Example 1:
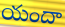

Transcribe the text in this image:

యందా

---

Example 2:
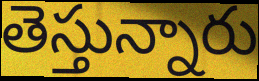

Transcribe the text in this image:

తెస్తున్నారు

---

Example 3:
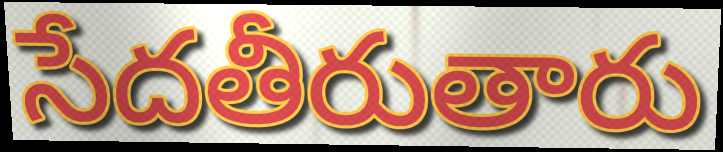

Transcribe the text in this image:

సేదతీరుతారు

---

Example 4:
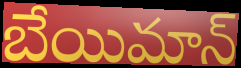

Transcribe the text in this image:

బేయిమాన్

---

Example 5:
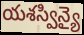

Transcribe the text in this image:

యశస్విన్యై